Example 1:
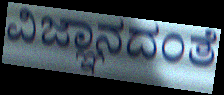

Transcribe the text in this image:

ವಿಜ್ಞಾನದಂತೆ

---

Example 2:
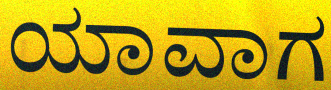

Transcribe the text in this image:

ಯಾವಾಗ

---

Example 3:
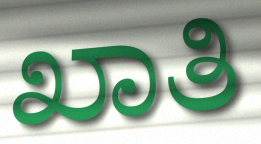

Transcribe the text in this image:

ಖಾತಿ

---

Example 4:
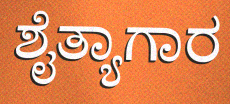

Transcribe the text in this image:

ಶೈತ್ಯಾಗಾರ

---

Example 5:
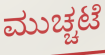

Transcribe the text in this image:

ಮುಚ್ಚಟೆ